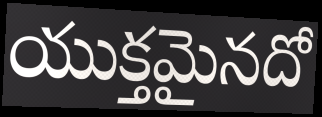
యుక్తమైనదో